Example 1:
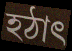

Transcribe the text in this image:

হঠাৎ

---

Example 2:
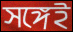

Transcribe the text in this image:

সঙ্গেই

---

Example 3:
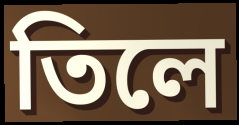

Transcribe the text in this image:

তিলে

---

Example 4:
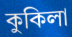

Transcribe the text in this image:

কুকিলা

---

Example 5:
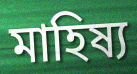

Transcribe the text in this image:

মাহিষ্য